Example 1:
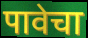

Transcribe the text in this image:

पावेचा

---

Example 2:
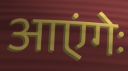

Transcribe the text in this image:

आएंगेः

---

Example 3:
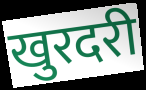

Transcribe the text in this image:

खुरदरी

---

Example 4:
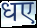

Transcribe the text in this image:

धए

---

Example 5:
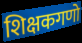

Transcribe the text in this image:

शिक्षकगणो